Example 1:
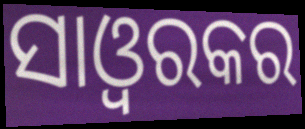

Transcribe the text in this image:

ସାଓ୍ୱରକର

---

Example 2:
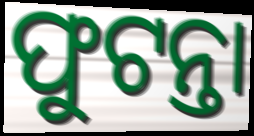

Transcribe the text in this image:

ଫୁଟନ୍ତା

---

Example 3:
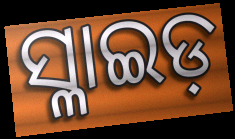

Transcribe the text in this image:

ସ୍ଳାଇଡ଼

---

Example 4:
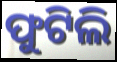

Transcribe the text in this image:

ଫୁଟିଲି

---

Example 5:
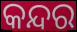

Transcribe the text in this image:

କନ୍ଦର